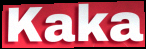
Kaka